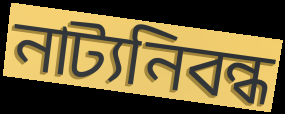
নাট্যনিবন্ধ